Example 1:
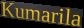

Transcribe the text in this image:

Kumarila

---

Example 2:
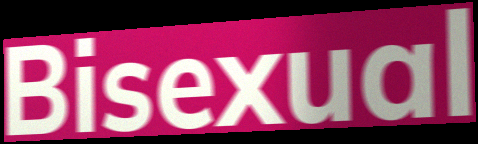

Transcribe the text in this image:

Bisexual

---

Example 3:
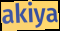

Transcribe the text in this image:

akiya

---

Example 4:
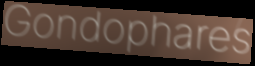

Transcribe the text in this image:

Gondophares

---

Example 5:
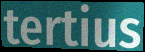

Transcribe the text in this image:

tertius